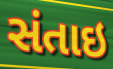
સંતાઇ